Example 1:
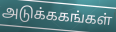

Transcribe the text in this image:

அடுக்ககங்கள்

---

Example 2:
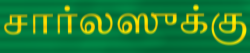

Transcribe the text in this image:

சார்லஸுக்கு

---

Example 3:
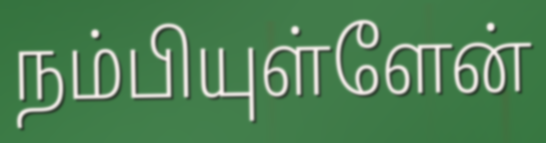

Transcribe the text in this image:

நம்பியுள்ளேன்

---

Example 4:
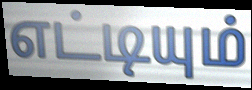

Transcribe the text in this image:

எட்டியும்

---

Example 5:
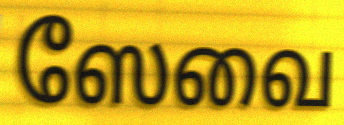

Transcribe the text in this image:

ஸேவை